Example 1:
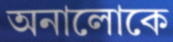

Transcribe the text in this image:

অনালোকে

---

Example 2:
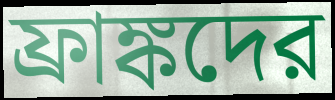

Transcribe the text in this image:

ফ্রাঙ্কদের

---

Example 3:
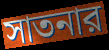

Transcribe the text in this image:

সাতনার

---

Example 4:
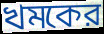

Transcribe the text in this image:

খমকের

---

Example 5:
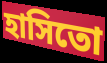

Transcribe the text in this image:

হাসিতো